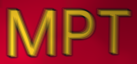
MPT